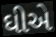
ઘીએ